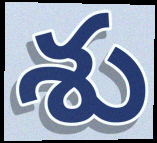
శు